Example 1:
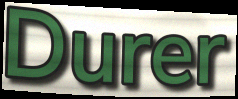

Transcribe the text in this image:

Durer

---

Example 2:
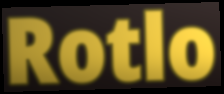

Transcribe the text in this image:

Rotlo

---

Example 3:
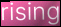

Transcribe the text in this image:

rising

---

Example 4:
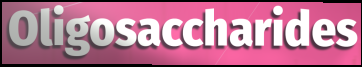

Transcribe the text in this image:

Oligosaccharides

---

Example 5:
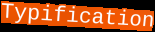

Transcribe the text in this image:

Typification